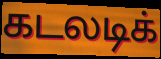
கடலடிக்